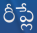
రీప్లే